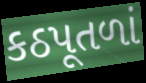
કઠપૂતળાં